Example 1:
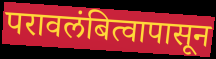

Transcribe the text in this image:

परावलंबित्वापासून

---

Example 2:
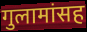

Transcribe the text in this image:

गुलामांसह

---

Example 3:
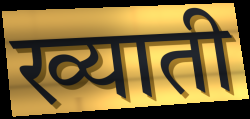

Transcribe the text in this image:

ख्याती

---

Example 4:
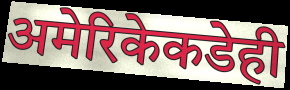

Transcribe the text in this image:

अमेरिकेकडेही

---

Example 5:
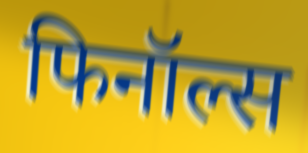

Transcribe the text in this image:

फिनॉल्स